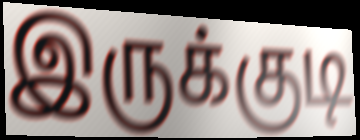
இருக்குடி